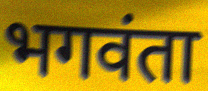
भगवंता